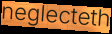
neglecteth